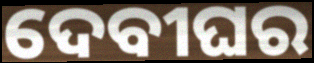
ଦେବୀଘର